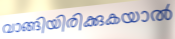
വാങ്ങിയിരിക്കുകയാൽ